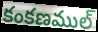
కంకణముల్